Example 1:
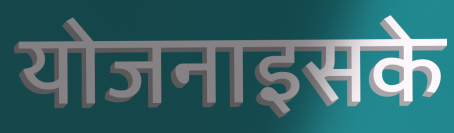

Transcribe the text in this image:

योजनाइसके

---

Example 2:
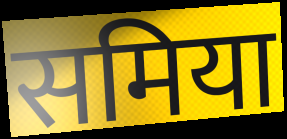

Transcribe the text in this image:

समिया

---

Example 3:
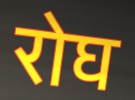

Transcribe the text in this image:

रोघ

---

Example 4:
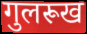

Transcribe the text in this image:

गुलरूख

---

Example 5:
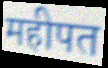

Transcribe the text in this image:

महीपत